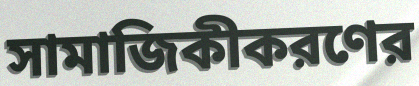
সামাজিকীকরণের